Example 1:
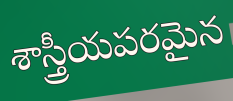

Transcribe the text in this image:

శాస్త్రీయపరమైన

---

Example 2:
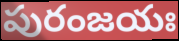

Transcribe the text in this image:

పురంజయః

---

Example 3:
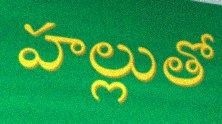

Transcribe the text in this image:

హల్లుతో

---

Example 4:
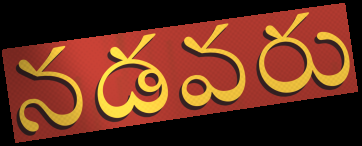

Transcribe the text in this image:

నడవరు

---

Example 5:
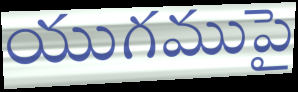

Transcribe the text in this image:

యుగముపై